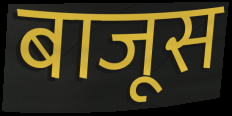
बाजूस